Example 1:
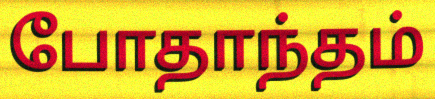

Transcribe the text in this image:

போதாந்தம்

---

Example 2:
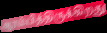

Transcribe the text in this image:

ஆரம்பித்திருக்கிறது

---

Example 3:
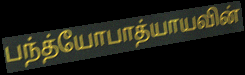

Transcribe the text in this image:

பந்த்யோபாத்யாயவின்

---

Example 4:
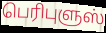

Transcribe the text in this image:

பெரிபுளுஸ்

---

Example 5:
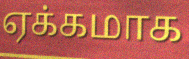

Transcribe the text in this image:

ஏக்கமாக